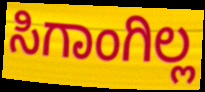
ಸಿಗಾಂಗಿಲ್ಲ